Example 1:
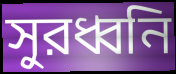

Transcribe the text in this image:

সুরধ্বনি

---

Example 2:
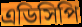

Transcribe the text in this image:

এডিসিপি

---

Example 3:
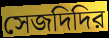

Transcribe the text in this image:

সেজদিদির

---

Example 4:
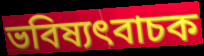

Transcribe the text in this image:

ভবিষ্যৎবাচক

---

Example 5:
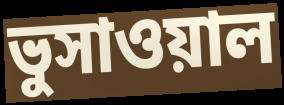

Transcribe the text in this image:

ভুসাওয়াল